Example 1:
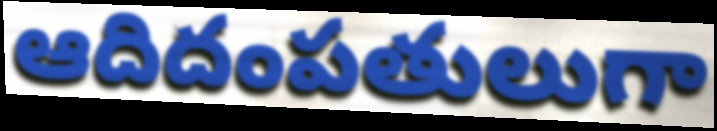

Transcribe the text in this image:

ఆదిదంపతులుగా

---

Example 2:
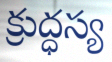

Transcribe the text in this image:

క్రుద్ధస్య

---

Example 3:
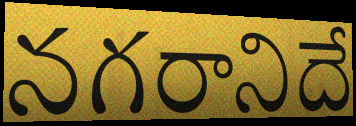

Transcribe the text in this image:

నగరానిదే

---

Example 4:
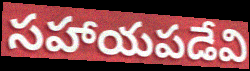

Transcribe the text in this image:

సహాయపడేవి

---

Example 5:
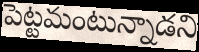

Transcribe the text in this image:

పెట్టమంటున్నాడని